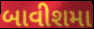
બાવીશમા